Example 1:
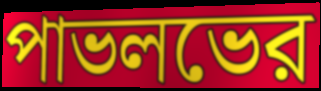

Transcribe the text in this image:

পাভলভের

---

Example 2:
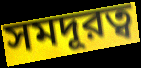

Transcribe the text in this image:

সমদূরত্ব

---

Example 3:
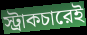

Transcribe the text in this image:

স্ট্রাকচারেই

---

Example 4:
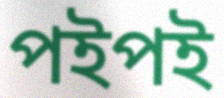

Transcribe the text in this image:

পইপই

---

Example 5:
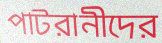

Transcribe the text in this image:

পাটরানীদের